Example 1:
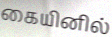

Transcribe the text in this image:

கையினில்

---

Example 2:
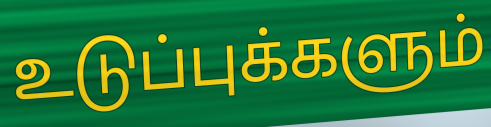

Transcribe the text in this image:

உடுப்புக்களும்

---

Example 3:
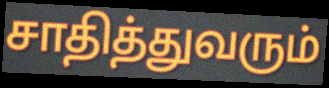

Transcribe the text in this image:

சாதித்துவரும்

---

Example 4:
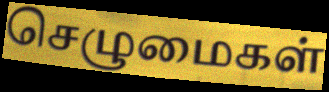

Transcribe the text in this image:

செழுமைகள்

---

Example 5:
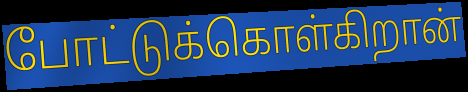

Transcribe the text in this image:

போட்டுக்கொள்கிறான்